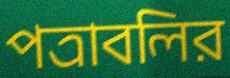
পত্রাবলির